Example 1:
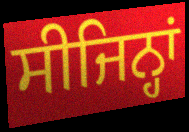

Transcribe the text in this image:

ਸੀਜਿਨ੍ਹਾਂ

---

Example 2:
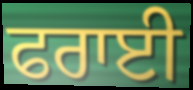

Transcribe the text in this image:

ਫਰਾਈ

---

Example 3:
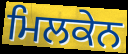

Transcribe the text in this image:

ਮਿਲਕੇਨ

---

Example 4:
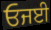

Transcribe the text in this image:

ਓਜਈ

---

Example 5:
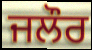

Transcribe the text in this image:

ਜਲੌਰ